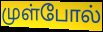
முள்போல்